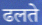
ढलते